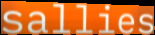
sallies